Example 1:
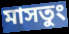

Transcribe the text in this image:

মাসতুং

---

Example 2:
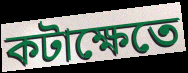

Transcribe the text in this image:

কটাক্ষেতে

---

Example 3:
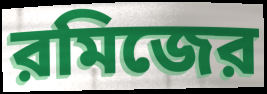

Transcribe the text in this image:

রমিজের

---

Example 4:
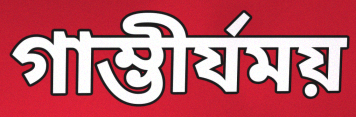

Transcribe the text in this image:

গাম্ভীর্যময়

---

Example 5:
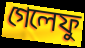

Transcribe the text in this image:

গেলেফু